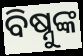
ବିଷ୍ନୁଙ୍କ